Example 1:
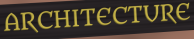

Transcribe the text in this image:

ARCHITECTURE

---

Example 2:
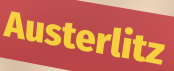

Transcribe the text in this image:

Austerlitz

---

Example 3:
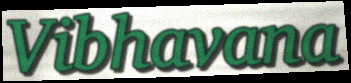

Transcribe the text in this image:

Vibhavana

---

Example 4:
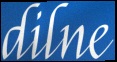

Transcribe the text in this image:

dilne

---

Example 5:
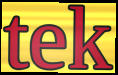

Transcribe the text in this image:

tek